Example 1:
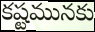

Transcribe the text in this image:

కష్టమునకు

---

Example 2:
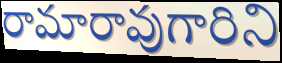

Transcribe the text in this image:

రామారావుగారిని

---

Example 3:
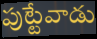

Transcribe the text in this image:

పుట్టేవాడు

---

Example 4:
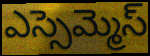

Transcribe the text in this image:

ఎస్సెమ్మెస్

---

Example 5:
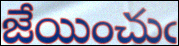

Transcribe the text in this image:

జేయించుఁ